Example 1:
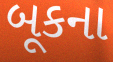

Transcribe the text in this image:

બૂકના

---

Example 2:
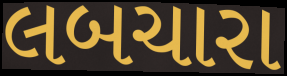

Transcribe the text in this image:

લબચારા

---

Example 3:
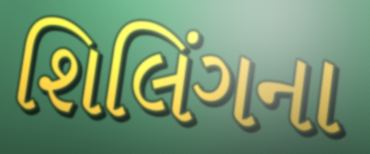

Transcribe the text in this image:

શિલિંગના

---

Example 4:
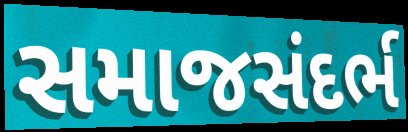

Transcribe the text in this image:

સમાજસંદર્ભ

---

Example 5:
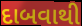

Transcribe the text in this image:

દાબવાથી